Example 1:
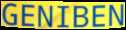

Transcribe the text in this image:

GENIBEN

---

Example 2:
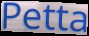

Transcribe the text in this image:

Petta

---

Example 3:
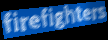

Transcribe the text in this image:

firefighters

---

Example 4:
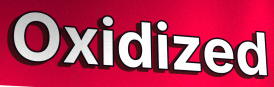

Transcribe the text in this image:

Oxidized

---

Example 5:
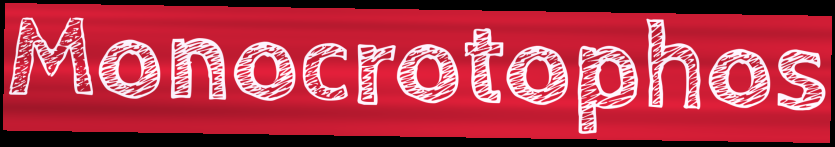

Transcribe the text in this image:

Monocrotophos